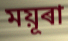
ময়ূৰা